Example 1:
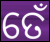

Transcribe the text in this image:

ତେଁ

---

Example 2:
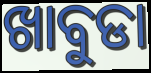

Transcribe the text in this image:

ଖାବୁଡା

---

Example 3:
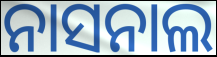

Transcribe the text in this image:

ନାସନାଲ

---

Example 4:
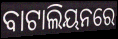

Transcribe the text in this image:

ବାଟାଲିୟନରେ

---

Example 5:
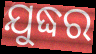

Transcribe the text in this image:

ଯୁଦ୍ଧର